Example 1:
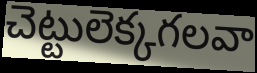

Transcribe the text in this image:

చెట్టులెక్కగలవా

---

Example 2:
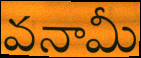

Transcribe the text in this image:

వనామీ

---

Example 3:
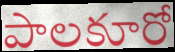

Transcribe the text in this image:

పాలకూరో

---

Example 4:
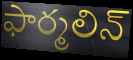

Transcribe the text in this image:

ఫార్మలిన్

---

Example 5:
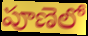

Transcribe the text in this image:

పూణెలో